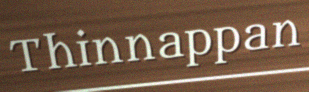
Thinnappan